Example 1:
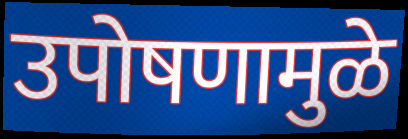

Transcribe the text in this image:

उपोषणामुळे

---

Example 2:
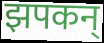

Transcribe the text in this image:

झपकन्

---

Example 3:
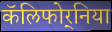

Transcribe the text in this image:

कॅलिफोर्निया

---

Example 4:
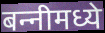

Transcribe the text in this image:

बन्नीमध्ये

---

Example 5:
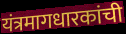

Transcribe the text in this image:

यंत्रमागधारकांची